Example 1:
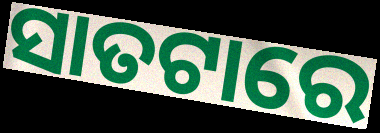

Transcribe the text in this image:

ସାତଟାରେ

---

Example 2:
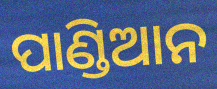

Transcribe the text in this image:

ପାଣ୍ଡିଆନ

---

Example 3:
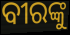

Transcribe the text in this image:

ବୀରଙ୍କୁ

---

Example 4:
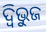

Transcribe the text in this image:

ଦ୍ଵିଭୁଜ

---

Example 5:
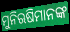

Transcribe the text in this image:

ମୁନିଋଷିମାନଙ୍କ